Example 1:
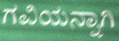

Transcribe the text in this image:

ಗವಿಯನ್ನಾಗಿ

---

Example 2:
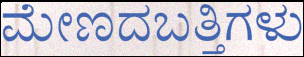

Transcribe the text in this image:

ಮೇಣದಬತ್ತಿಗಳು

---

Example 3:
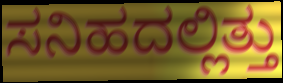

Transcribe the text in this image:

ಸನಿಹದಲ್ಲಿತ್ತು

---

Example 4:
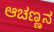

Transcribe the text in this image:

ಆಚಣ್ಣನ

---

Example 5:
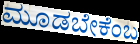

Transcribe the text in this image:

ಮೂಡಬೇಕೆಂಬ